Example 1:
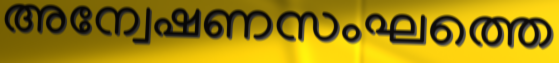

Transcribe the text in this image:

അന്വേഷണസംഘത്തെ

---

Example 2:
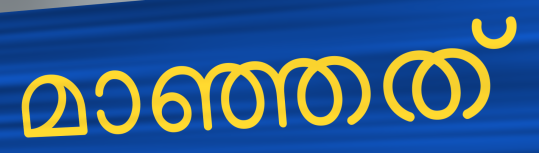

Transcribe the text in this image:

മാഞ്ഞത്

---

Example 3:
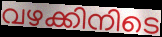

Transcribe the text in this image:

വഴക്കിനിടെ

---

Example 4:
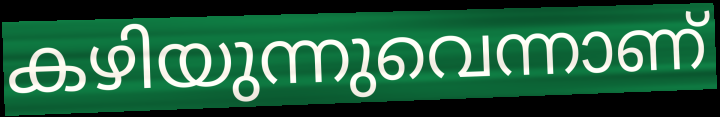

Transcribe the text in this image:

കഴിയുന്നുവെന്നാണ്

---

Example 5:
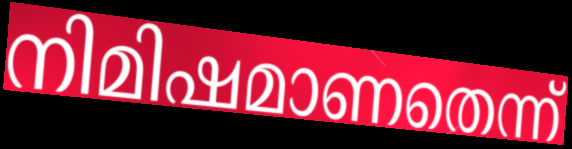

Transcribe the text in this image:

നിമിഷമാണതെന്ന്